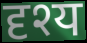
दृश्य